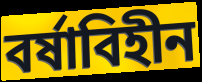
বর্ষাবিহীন